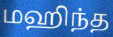
மஹிந்த